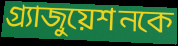
গ্র্যাজুয়েশনকে